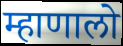
म्हाणालो